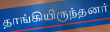
தாங்கியிருந்தனர்